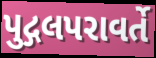
પુદ્ગલપરાવર્તે